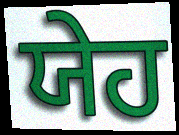
ਯੇਹ